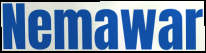
Nemawar